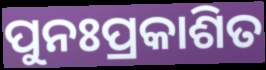
ପୁନଃପ୍ରକାଶିତ